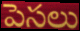
పెసలు